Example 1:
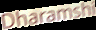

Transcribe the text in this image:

Dharamshi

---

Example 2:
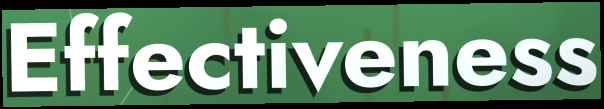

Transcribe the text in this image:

Effectiveness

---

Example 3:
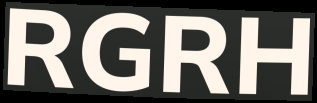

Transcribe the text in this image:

RGRH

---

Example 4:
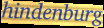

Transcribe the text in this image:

hindenburg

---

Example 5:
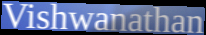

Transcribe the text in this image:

Vishwanathan